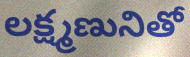
లక్ష్మణునితో